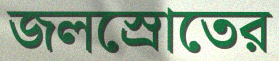
জলস্রোতের